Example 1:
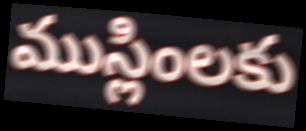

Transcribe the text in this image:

ముస్లింలకు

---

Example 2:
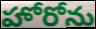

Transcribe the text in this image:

హోరోను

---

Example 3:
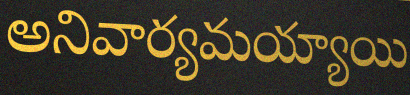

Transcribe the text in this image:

అనివార్యమయ్యాయి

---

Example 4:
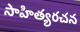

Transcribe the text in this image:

సాహిత్యరచన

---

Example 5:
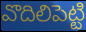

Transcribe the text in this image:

వొదిలిపెట్టి